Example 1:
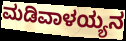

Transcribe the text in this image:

ಮಡಿವಾಳಯ್ಯನ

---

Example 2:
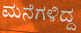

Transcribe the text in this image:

ಮನೆಗಳಿದ್ದ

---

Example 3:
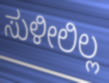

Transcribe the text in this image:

ಸುಳೀಲಿಲ್ಲ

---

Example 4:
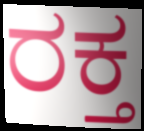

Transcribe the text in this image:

ರಕ್ತ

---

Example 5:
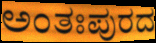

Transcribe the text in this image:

ಅಂತಃಪುರದ